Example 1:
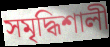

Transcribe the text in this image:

সমৃদ্ধিশালী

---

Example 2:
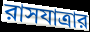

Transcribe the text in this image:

রাসযাত্রার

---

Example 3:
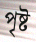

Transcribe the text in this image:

পৃষ্ট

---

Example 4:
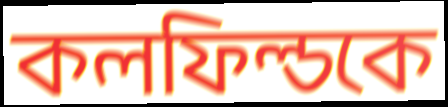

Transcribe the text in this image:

কলফিল্ডকে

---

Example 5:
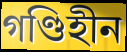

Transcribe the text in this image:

গণ্ডিহীন